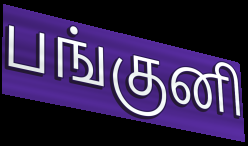
பங்குனி